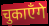
चुकाएँगे